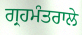
ਗ੍ਰਹਮੰਤਰਾਲੇ